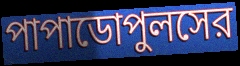
পাপাডোপুলসের